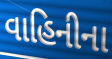
વાહિનીના